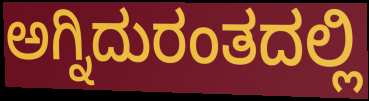
ಅಗ್ನಿದುರಂತದಲ್ಲಿ